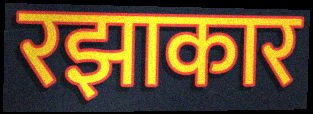
रझाकार